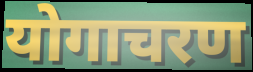
योगाचरण